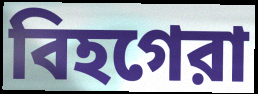
বিহগেরা